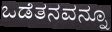
ಒಡೆತನವನ್ನೂ